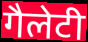
गैलेटी